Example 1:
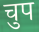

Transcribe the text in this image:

चुप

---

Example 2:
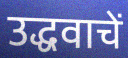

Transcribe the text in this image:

उद्धवाचें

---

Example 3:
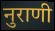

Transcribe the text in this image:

नुराणी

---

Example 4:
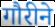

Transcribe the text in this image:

गौरीने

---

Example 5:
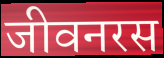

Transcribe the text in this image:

जीवनरस